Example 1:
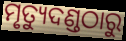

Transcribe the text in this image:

ମୃତ୍ୟୁଦଣ୍ଡଠାରୁ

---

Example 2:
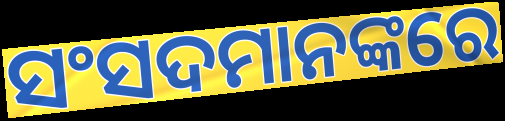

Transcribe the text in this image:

ସଂସଦମାନଙ୍କରେ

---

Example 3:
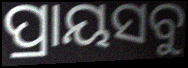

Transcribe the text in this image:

ପ୍ରାୟସବୁ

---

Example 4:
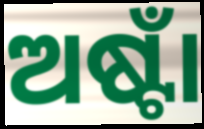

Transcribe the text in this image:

ଅଷ୍ଟାଁ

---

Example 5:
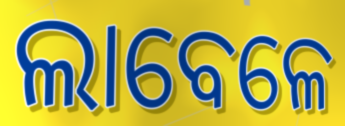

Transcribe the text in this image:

ଲାବେଳେ